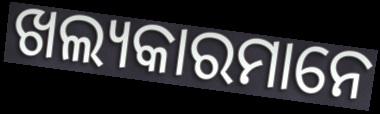
ଖଲ୍ୟକାରମାନେ